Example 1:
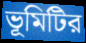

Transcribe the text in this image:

ভূমিটির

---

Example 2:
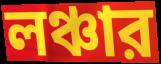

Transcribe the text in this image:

লঞ্চার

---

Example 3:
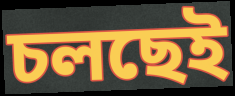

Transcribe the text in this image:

চলছেই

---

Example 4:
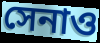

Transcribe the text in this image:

সেনাও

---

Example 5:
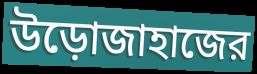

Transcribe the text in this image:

উড়োজাহাজের